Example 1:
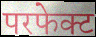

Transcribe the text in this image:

परफेक्ट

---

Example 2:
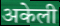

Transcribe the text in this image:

अकेली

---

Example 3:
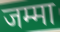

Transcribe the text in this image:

जम्मा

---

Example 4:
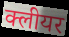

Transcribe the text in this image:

क्लीयर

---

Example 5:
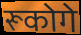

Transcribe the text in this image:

रूकोगे